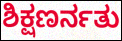
ಶಿಕ್ಷಣರ್ನತು